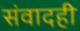
संवादही